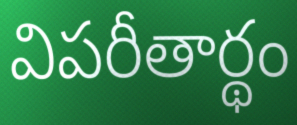
విపరీతార్థం